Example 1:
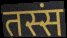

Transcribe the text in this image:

तस्सं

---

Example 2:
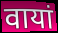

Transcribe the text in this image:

वायां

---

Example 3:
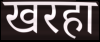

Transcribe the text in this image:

खरहा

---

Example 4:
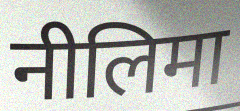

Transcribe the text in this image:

नीलिमा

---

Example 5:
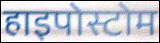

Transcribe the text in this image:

हाइपोस्टोम